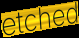
etched